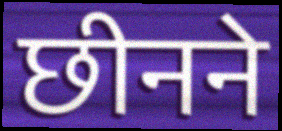
छीनने